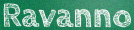
Ravanno